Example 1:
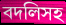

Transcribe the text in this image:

বদলিসহ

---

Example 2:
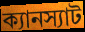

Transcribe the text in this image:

ক্যানস্যাট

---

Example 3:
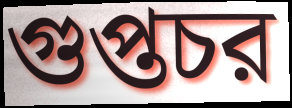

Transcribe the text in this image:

গুপ্তচর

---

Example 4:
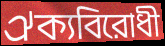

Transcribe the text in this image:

ঐক্যবিরোধী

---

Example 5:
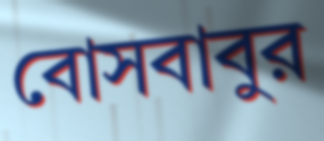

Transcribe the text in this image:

বোসবাবুর